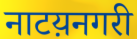
नाटय़नगरी